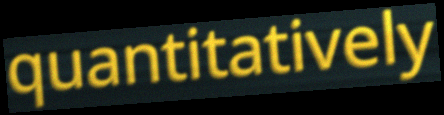
quantitatively